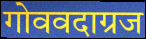
गोववदाग्रज